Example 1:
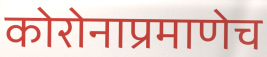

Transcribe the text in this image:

कोरोनाप्रमाणेच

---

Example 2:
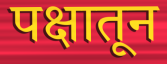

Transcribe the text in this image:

पक्षातून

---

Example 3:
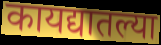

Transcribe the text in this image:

कायद्यातल्या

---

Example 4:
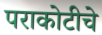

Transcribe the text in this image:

पराकोटीचे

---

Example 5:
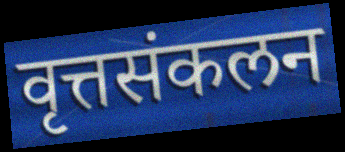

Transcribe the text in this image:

वृत्तसंकलन